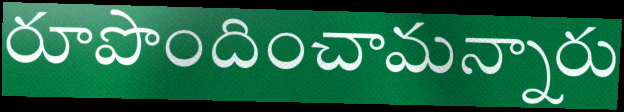
రూపొందించామన్నారు